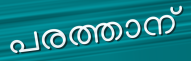
പരത്താന്